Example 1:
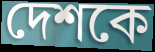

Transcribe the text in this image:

দেশকে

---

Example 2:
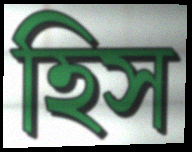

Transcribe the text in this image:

হিস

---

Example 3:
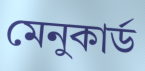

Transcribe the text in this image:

মেনুকার্ড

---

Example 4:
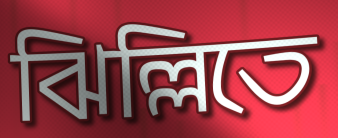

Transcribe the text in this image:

ঝিল্লিতে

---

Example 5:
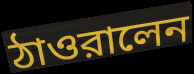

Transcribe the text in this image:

ঠাওরালেন